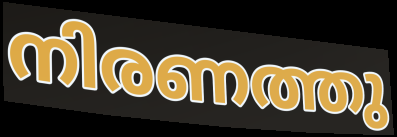
നിരണത്തു